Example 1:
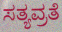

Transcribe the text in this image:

ಸತ್ಯವ್ರತೆ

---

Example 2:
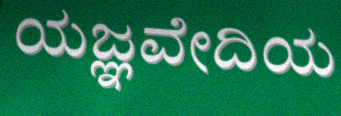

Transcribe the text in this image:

ಯಜ್ಞವೇದಿಯ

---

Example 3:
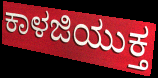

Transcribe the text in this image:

ಕಾಳಜಿಯುಕ್ತ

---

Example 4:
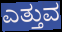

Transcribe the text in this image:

ಎತ್ತುವ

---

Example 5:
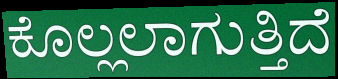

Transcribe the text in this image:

ಕೊಲ್ಲಲಾಗುತ್ತಿದೆ